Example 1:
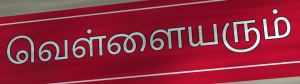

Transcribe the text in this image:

வெள்ளையரும்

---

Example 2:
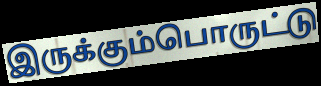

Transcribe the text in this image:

இருக்கும்பொருட்டு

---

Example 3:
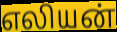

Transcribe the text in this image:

எலியன்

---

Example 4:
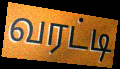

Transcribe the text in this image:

வரட்டி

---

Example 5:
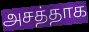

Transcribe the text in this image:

அசத்தாக